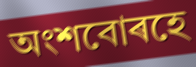
অংশবোৰহে